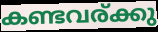
കണ്ടവര്ക്കു